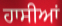
ਹਾਸੀਆਂ